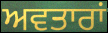
ਅਵਤਾਰਾਂ